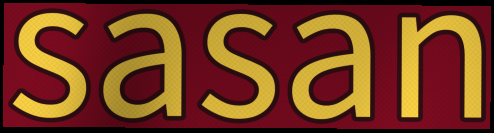
sasan